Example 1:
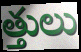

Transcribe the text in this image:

త్తులు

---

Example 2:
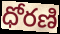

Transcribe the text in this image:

ధోరణి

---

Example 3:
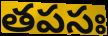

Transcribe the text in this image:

తపసః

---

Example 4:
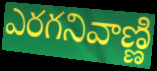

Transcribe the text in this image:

ఎరగనివాణ్ణి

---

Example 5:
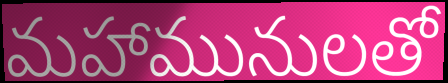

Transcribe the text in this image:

మహామునులతో